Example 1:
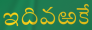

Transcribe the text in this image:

ఇదివఱకే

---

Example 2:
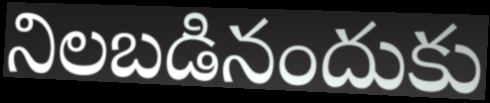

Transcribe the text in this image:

నిలబడినందుకు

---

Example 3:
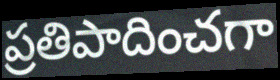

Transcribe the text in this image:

ప్రతిపాదించగా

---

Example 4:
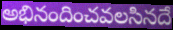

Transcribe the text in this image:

అభినందించవలసినదే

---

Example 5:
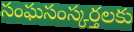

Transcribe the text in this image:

సంఘసంస్కర్తలకు